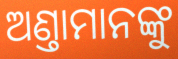
ଅଣ୍ତାମାନଙ୍କୁ